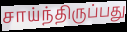
சாய்ந்திருப்பது